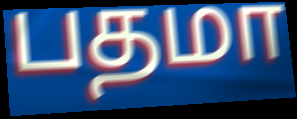
பதமா